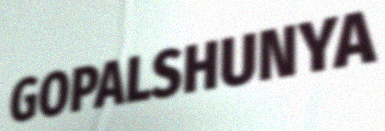
GOPALSHUNYA